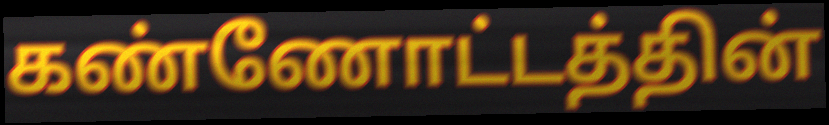
கண்ணோட்டத்தின்